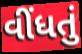
વીંધતું